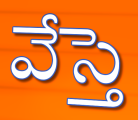
వేస్తె